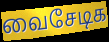
வைசேடிக